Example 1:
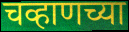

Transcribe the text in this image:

चव्हाणच्या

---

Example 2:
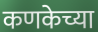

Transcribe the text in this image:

कणकेच्या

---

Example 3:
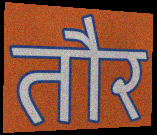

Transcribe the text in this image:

तौर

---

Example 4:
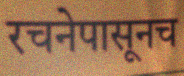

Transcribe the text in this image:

रचनेपासूनच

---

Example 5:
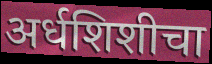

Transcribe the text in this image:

अर्धशिशीचा